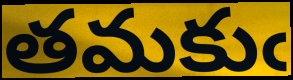
తమకుఁ